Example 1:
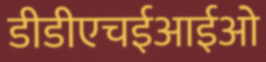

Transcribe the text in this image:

डीडीएचईआईओ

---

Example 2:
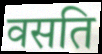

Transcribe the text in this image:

वसति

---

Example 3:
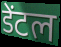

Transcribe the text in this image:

डेंटल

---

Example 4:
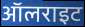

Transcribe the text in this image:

ऑलराइट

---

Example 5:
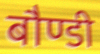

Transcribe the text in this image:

बौण्डी